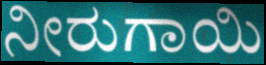
ನೀರುಗಾಯಿ